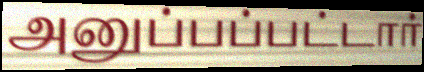
அனுப்பப்பட்டார்